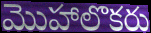
మొహాలొకరు